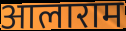
आलाराम